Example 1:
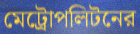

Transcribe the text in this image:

মেট্রোপলিটনের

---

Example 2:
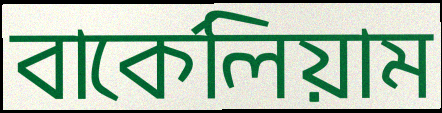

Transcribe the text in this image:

বার্কেলিয়াম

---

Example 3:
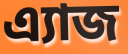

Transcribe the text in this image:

এ্যাজ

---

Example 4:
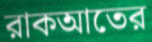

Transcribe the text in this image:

রাকআতের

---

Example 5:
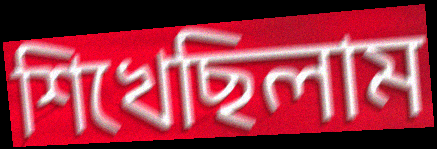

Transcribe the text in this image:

শিখেছিলাম